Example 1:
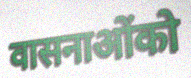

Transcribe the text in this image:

वासनाओंको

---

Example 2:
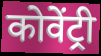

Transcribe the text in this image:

कोवेंट्री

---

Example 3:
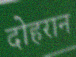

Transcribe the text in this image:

दोहरान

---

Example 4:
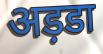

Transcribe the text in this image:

अड़डा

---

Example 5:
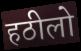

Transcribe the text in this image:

हठीलो